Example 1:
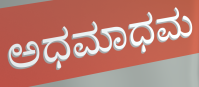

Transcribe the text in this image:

ಅಧಮಾಧಮ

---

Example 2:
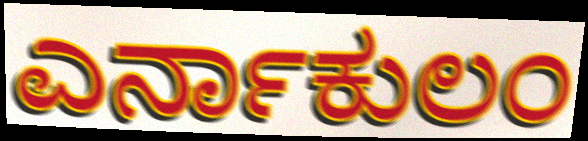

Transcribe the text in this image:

ಎರ್ನಾಕುಲಂ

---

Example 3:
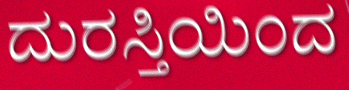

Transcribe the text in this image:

ದುರಸ್ತಿಯಿಂದ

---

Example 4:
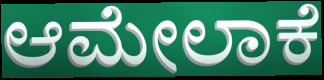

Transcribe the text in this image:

ಆಮೇಲಾಕೆ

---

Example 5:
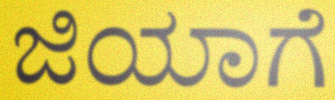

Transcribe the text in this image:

ಜಿಯಾಗೆ